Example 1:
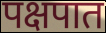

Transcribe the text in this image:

पक्षपात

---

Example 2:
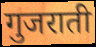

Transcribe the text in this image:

गुजराती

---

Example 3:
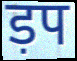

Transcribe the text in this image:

ड़प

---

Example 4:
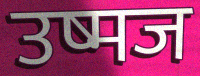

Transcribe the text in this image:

उष्मज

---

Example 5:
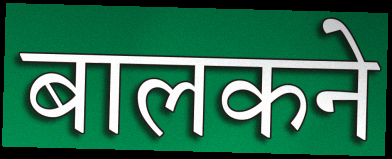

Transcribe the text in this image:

बालकने